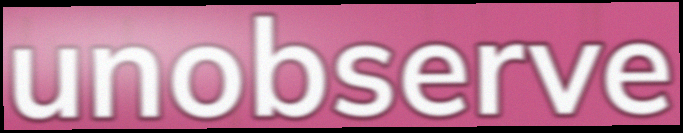
unobserve